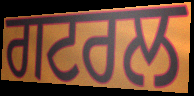
ਗਟਰਲ